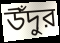
উঁদুর